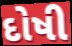
દોષી